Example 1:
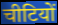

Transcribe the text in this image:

चीटियों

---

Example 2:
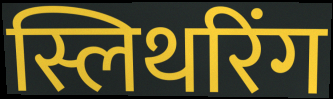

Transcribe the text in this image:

स्लिथरिंग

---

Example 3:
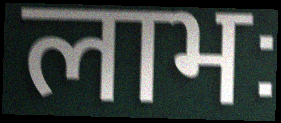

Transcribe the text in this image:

लाभः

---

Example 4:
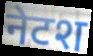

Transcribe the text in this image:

नेटश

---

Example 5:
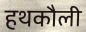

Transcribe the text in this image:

हथकौली